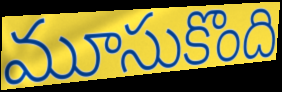
మూసుకొంది